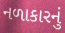
નળાકારનું